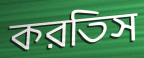
করতিস